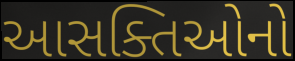
આસક્તિઓનો